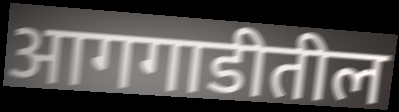
आगगाडीतील